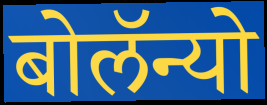
बोलॅन्यो